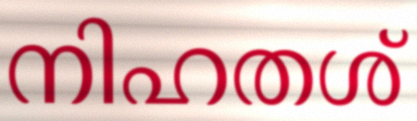
നിഹതശ്